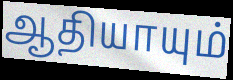
ஆதியாயும்